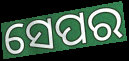
ସେପର